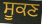
ਸੂਕਣ